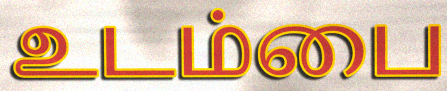
உடம்பை